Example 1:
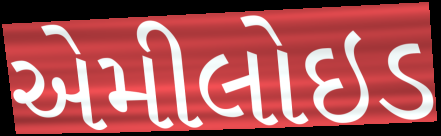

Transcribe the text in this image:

એમીલોઇડ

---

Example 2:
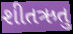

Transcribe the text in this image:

શીતઋતુ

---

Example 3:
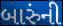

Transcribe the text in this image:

બારુંની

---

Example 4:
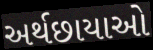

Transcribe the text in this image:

અર્થછાયાઓ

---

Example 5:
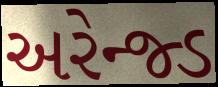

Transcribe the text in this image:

અરેન્જ્ડ